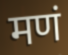
मणं